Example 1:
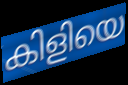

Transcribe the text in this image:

കിളിയെ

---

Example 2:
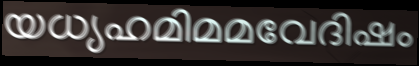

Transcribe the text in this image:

യധ്യഹമിമമവേദിഷം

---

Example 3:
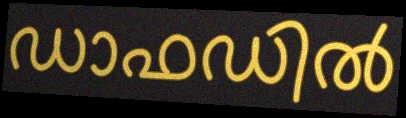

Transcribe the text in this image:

ഡാഫഡിൽ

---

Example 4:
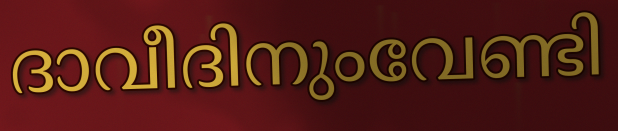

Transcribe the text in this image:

ദാവീദിനുംവേണ്ടി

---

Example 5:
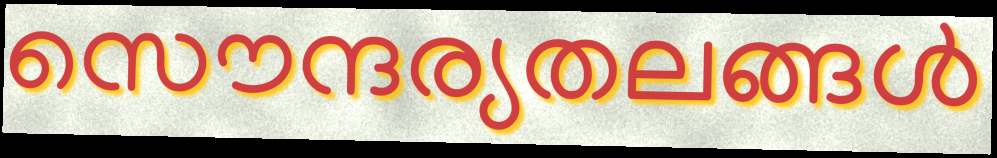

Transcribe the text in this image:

സൌന്ദര്യതലങ്ങൾ